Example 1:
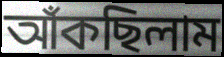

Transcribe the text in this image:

আঁকছিলাম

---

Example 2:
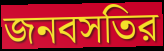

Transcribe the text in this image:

জনবসতির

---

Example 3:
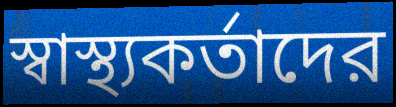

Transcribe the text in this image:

স্বাস্থ্যকর্তাদের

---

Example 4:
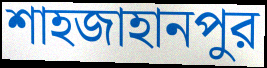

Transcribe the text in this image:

শাহজাহানপুর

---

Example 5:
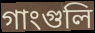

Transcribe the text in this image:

গাংগুলি